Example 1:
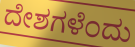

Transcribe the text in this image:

ದೇಶಗಳೆಂದು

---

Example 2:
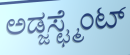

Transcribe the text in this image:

ಅಡ್ಜಸ್ಟ್ಮೆಂಟ್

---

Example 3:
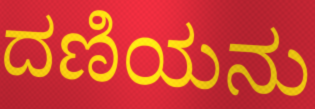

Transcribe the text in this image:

ದಣಿಯನು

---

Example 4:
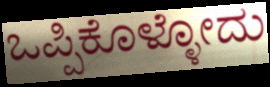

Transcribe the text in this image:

ಒಪ್ಪಿಕೊಳ್ಳೋದು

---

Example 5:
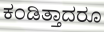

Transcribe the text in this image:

ಕಂಡಿತ್ತಾದರೂ